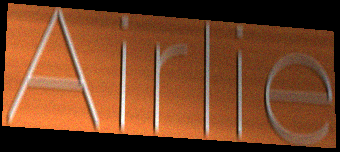
Airlie